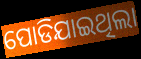
ପୋଡିଯାଇଥିଲା